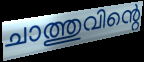
ചാത്തുവിന്റെ